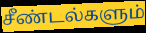
சீண்டல்களும்